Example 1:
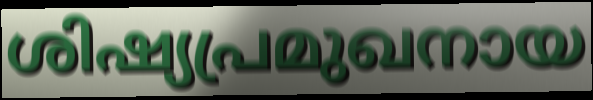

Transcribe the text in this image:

ശിഷ്യപ്രമുഖനായ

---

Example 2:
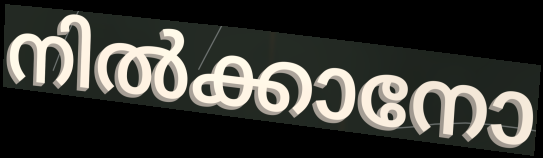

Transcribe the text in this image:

നിൽക്കാനോ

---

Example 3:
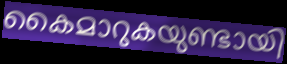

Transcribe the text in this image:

കൈമാറുകയുണ്ടായി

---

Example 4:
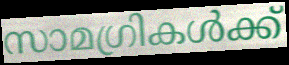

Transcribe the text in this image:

സാമഗ്രികൾക്ക്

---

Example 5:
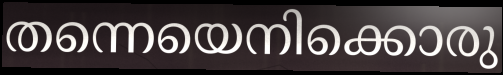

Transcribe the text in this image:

തന്നെയെനിക്കൊരു